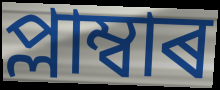
প্লাম্বাৰ